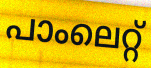
പാംലെറ്റ്